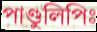
পাণ্ডুলিপিঃ